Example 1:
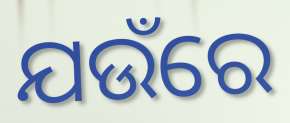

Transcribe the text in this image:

ଯଉଁରେ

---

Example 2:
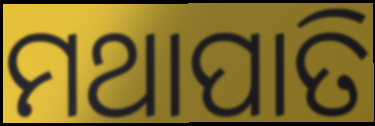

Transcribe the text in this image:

ମଥାପାତି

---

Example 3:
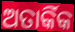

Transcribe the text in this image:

ଅତାର୍କିକ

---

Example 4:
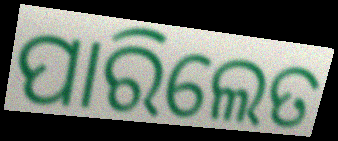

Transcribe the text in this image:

ପାରିଲେତ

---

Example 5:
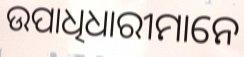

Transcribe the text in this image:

ଉପାଧିଧାରୀମାନେ